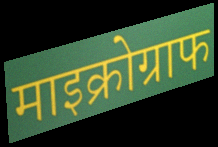
माइक्रोग्राफ